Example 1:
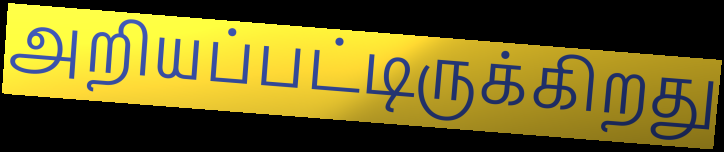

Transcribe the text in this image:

அறியப்பட்டிருக்கிறது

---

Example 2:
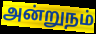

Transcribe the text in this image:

அன்றுநம்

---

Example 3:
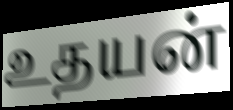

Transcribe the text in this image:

உதயன்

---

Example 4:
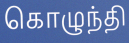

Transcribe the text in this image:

கொழுந்தி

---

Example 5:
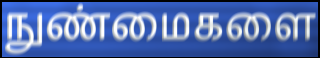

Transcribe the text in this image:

நுண்மைகளை